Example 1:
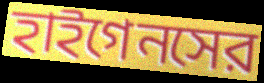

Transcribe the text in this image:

হাইগেনসের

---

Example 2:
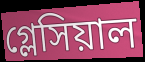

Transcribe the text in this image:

গ্লেসিয়াল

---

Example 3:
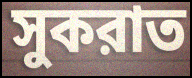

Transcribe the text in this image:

সুকরাত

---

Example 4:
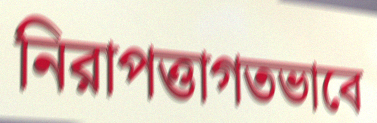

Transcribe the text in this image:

নিরাপত্তাগতভাবে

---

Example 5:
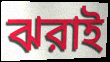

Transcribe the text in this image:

ঝরাই